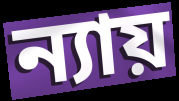
ন্যায়